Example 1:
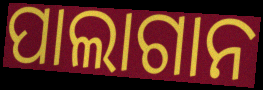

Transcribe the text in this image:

ପାଲାଗାନ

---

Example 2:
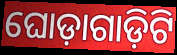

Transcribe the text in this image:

ଘୋଡ଼ାଗାଡ଼ିଟି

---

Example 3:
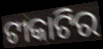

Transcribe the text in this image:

ଟୀକାଟିର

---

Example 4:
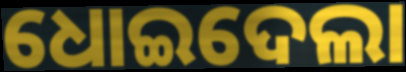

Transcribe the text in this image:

ଧୋଇଦେଲା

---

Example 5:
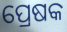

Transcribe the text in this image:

ପ୍ରେଷକ